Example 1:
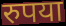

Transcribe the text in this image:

रुपया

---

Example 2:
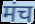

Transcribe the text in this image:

मंच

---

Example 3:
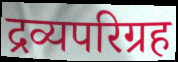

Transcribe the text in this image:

द्रव्यपरिग्रह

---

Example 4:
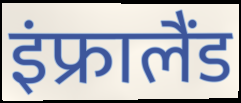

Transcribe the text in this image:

इंफ्रालैंड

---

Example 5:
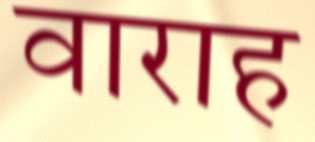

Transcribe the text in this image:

वाराह